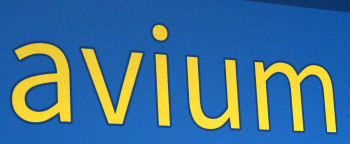
avium